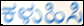
ಕಳುಹಿಸಿ